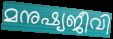
മനുഷ്യജീവി